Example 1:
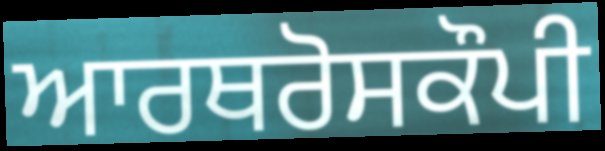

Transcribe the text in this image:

ਆਰਥਰੋਸਕੌਪੀ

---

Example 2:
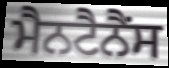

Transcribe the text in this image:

ਮੈਨਟੈਨੈਂਸ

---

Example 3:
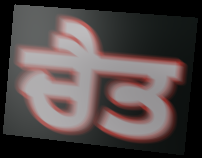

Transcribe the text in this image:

ਚੈਤ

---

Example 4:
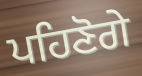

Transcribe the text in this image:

ਪਹਿਣੋਗੇ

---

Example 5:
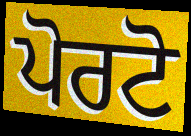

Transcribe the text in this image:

ਪੋਰਟੋ